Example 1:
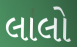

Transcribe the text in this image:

લાલો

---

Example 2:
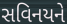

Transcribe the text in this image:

સવિનયને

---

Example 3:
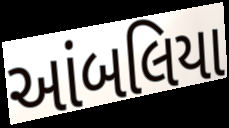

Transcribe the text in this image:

આંબલિયા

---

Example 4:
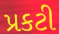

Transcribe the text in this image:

પ્રકટી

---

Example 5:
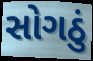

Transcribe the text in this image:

સોગઠું